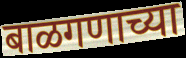
बाळगणाच्या